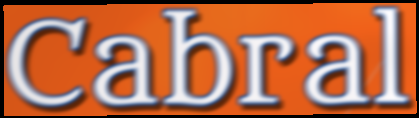
Cabral